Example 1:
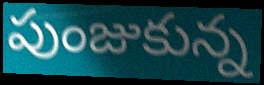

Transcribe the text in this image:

పుంజుకున్న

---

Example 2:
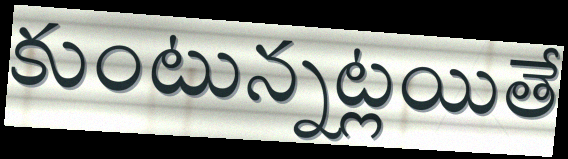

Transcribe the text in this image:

కుంటున్నట్లయితే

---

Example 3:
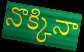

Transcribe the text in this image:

నొక్కినా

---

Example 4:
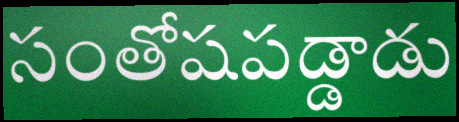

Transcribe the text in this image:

సంతోషపడ్డాడు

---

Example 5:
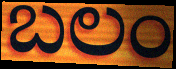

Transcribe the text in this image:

బలం